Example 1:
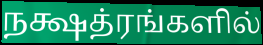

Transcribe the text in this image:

நக்ஷத்ரங்களில்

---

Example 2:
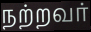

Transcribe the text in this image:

நற்றவர்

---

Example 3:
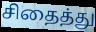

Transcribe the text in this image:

சிதைத்து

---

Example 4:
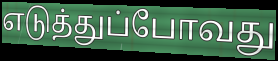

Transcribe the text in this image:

எடுத்துப்போவது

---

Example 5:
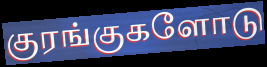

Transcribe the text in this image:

குரங்குகளோடு